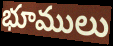
భూములు